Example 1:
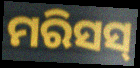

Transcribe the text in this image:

ମରିସସ୍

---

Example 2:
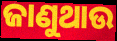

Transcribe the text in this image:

ଜାଣୁଥାଉ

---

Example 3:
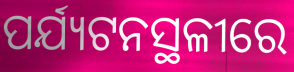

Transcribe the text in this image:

ପର୍ଯ୍ୟଟନସ୍ଥଳୀରେ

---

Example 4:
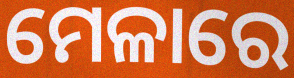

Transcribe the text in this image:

ମେଳାରେ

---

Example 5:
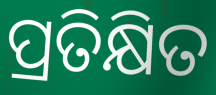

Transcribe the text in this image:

ପ୍ରତିକ୍ଷିତ